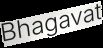
Bhagavat